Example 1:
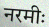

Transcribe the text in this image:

नरमीः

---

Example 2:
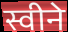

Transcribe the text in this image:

स्वीने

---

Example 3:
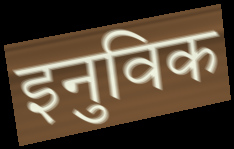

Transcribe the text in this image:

इनुविक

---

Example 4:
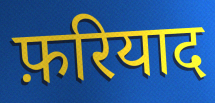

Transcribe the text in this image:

फ़रियाद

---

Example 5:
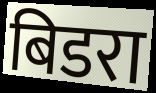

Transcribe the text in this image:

बिडरा